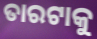
ତାରଟାକୁ